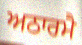
ਅਠਾਰਮੈ